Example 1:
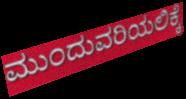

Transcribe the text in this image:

ಮುಂದುವರಿಯಲಿಕ್ಕೆ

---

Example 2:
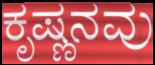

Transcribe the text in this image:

ಕೃಷ್ಣನವು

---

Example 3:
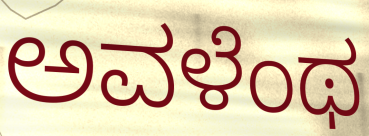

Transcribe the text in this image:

ಅವಳೆಂಥ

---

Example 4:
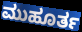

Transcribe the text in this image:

ಮುಹೂರ್ತ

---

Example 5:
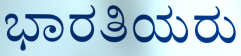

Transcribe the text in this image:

ಭಾರತಿಯರು